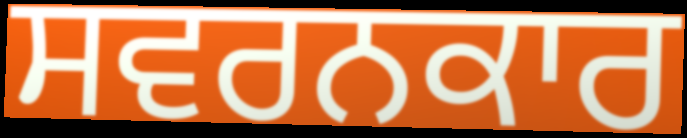
ਸਵਰਨਕਾਰ